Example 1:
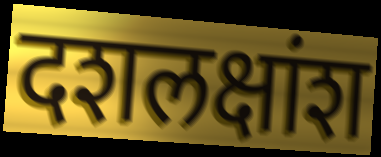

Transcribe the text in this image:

दशलक्षांश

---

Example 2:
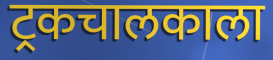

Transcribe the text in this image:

ट्रकचालकाला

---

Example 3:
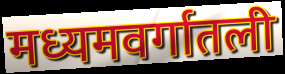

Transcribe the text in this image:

मध्यमवर्गातली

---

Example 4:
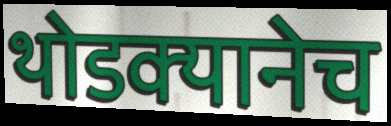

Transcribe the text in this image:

थोडक्यानेच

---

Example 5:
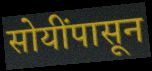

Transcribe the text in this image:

सोयींपासून